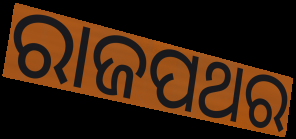
ରାଜପଥର